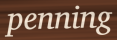
penning